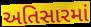
અતિસારમાં